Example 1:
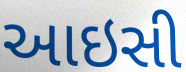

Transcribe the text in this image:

આઇસી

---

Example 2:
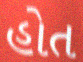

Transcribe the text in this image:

હોત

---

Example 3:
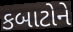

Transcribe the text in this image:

કબાટોને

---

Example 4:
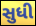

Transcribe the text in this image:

સુધી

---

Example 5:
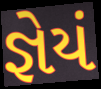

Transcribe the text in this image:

જ્ઞેયં